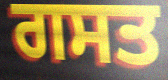
ਗਸਤ